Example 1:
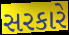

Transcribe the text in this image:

સરકારે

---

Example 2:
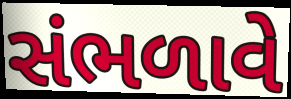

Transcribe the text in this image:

સંભળાવે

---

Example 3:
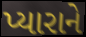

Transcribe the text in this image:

પ્યારાને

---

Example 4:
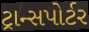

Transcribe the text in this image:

ટ્રાન્સપોર્ટર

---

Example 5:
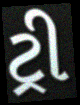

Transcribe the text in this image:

ટ્રી